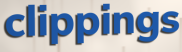
clippings